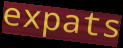
expats